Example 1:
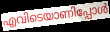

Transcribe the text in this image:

എവിടെയാണിപ്പോൾ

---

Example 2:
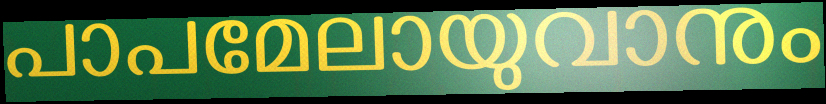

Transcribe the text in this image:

പാപമേലായുവാനും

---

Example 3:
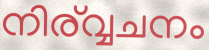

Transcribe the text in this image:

നിര്വ്വചനം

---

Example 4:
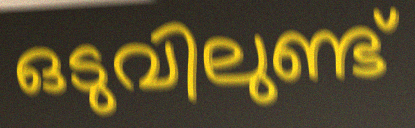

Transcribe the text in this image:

ഒടുവിലുണ്ട്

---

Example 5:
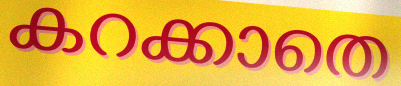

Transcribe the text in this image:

കറക്കാതെ